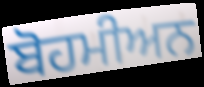
ਬੋਹਮੀਅਨ